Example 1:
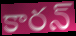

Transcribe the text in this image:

కారన్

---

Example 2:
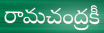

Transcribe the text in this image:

రామచంద్రకీ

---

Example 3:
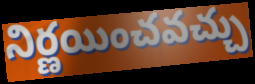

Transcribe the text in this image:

నిర్ణయించవచ్చు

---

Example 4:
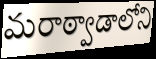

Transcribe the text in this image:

మరాఠ్వాడాలోని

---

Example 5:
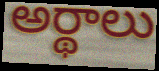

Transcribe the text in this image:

అర్థాలు